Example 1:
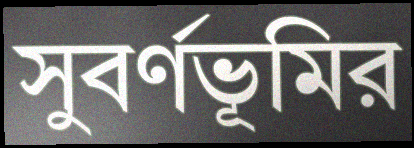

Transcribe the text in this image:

সুবর্ণভূমির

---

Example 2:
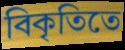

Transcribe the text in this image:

বিকৃতিতে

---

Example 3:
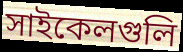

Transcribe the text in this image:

সাইকেলগুলি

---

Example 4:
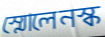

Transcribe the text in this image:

স্মোলেনস্ক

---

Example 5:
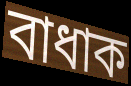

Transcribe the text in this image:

বাধাক